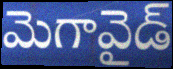
మెగావైడ్